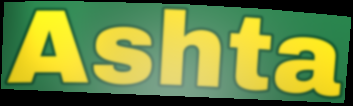
Ashta